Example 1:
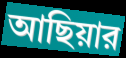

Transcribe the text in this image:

আছিয়ার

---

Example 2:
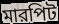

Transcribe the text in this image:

মারপিট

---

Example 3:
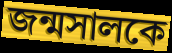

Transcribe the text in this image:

জন্মসালকে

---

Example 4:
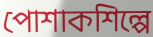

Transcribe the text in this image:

পোশাকশিল্পে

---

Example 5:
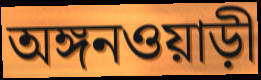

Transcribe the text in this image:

অঙ্গনওয়াড়ী